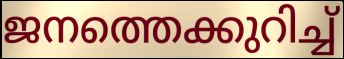
ജനത്തെക്കുറിച്ച്